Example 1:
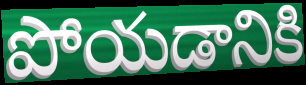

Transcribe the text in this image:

పోయడానికి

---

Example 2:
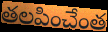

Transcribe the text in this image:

తలపించేంత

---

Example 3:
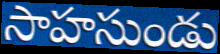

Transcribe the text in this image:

సాహసుండు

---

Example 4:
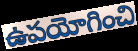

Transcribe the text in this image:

ఉపయోగించి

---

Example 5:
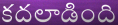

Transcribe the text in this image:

కదలాడింది